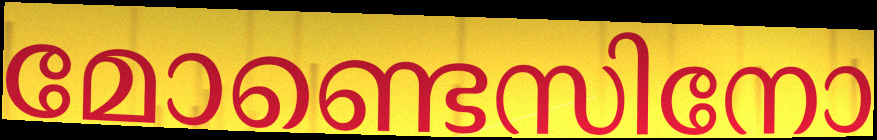
മോണ്ടെസിനോ